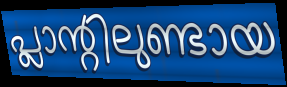
പ്ലാന്റിലുണ്ടായ